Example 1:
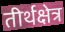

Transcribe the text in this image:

तीर्थक्षेत्र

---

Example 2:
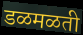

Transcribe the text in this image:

डळमळती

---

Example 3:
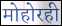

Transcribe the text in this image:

मोहोरही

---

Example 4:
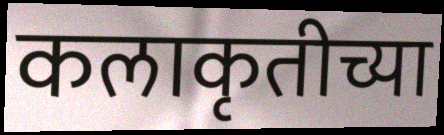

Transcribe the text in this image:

कलाकृतीच्या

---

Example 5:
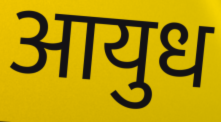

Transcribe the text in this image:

आयुध